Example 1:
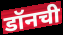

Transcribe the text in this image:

डॉनची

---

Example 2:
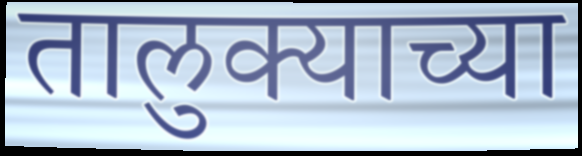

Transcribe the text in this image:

तालुक्याच्या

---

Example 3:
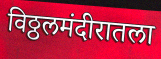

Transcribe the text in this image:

विठ्ठलमंदीरातला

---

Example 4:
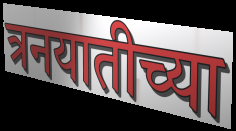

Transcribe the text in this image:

त्रनयातीच्या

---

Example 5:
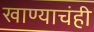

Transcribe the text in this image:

खाण्याचंही